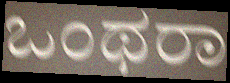
ಒಂಥರಾ